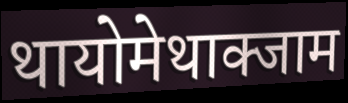
थायोमेथाक्जाम